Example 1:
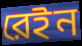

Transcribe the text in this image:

রেইন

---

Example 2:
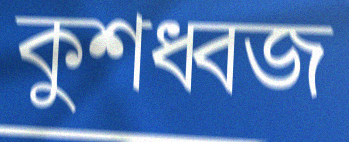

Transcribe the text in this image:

কুশধ্বজ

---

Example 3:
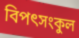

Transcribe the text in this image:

বিপৎসংকুল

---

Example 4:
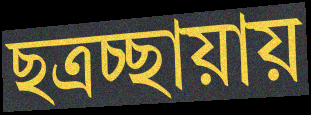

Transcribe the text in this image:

ছত্রচ্ছায়ায়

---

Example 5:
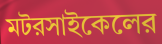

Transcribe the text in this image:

মটরসাইকেলের